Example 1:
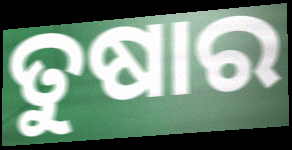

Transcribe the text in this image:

ତୁଷାର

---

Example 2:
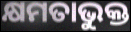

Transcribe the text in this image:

କ୍ଷମତାଭୁକ୍ତ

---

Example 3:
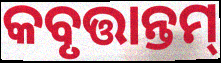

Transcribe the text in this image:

କବୃତ୍ତାନ୍ତମ୍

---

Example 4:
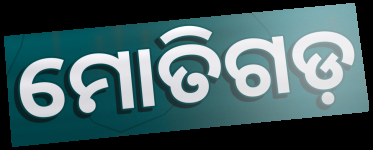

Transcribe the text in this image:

ମୋତିଗଡ଼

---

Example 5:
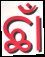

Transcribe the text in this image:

ଛାଁ